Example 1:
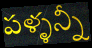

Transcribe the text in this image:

పళ్ళన్నీ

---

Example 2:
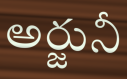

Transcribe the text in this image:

అర్జునీ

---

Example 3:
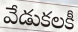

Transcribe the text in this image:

వేడుకలకీ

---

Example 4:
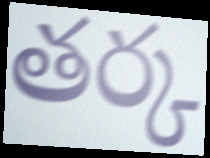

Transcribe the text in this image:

తర్క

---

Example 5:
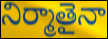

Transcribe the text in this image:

నిర్మాతైనా